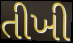
તીખી